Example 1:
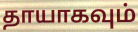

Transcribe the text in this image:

தாயாகவும்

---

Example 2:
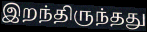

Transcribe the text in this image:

இறந்திருந்தது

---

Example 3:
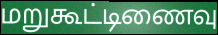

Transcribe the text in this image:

மறுகூட்டிணைவு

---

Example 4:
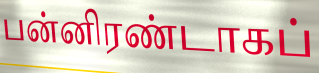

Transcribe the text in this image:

பன்னிரண்டாகப்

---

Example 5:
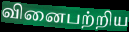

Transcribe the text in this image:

வினைபற்றிய